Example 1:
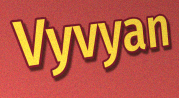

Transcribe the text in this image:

Vyvyan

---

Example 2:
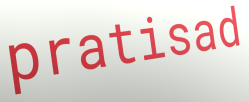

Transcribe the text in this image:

pratisad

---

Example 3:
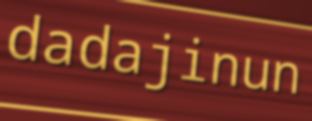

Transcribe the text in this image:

dadajinun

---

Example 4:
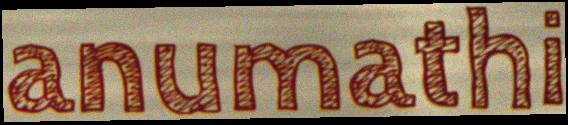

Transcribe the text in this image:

anumathi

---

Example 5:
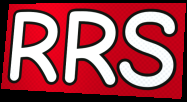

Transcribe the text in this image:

RRS